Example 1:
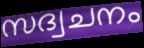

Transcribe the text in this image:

സദ്വചനം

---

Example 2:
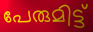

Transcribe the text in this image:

പേരുമിട്ട്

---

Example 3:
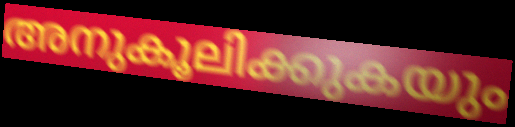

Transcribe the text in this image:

അനുകൂലിക്കുകയും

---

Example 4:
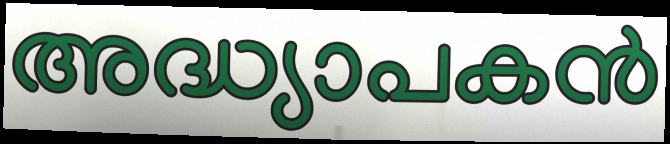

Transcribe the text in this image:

അദ്ധ്യാപകൻ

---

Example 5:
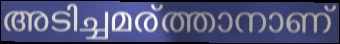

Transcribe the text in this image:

അടിച്ചമര്ത്താനാണ്